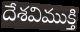
దేశవిముక్తి